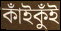
কাঁইকুঁই